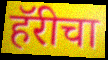
हॅरीचा